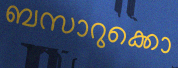
ബസാറുക്കൊ